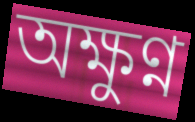
অক্ষুণ্ন